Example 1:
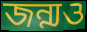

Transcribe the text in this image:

জন্মও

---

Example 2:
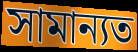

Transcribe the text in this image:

সামান্যত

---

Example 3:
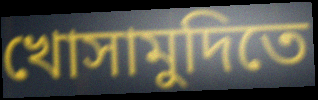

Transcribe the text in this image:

খোসামুদিতে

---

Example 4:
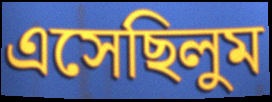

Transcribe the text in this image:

এসেছিলুম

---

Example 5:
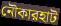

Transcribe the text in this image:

নৌকারহাট